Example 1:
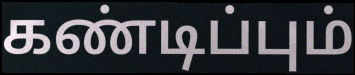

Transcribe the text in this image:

கண்டிப்பும்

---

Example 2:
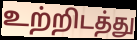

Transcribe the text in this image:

உற்றிடத்து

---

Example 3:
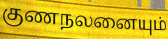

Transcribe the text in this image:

குணநலனையும்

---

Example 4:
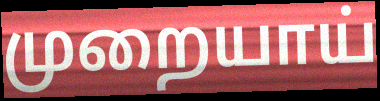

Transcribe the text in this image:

முறையாய்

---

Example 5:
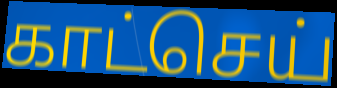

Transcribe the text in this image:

காட்செய்